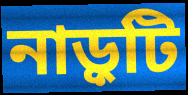
নাড়ুটি